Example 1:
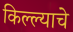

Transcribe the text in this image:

किल्ल्याचे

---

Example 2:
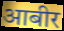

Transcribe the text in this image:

आबीर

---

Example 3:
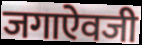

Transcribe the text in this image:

जगाऐवजी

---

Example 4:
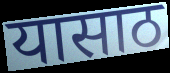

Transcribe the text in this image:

यासाठ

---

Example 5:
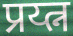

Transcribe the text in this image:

प्रय्त्न